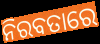
ନିରବତାରେ